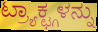
ಟ್ರ್ಯಾಕ್ಟ್ಗಳನ್ನು